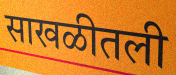
साखळीतली